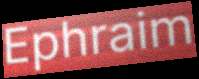
Ephraim